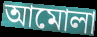
আমোলা